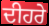
ਦੀਹਰੇ